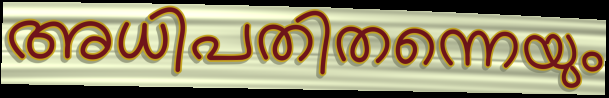
അധിപതിതന്നെയും